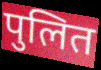
पुलित